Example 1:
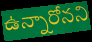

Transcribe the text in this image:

ఉన్నారోనని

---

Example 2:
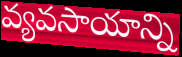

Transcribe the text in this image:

వ్యవసాయాన్ని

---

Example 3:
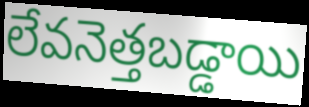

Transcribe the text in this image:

లేవనెత్తబడ్డాయి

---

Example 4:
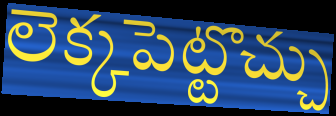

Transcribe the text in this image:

లెక్కపెట్టొచ్చు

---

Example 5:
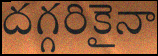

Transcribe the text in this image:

దగ్గరికైనా